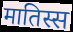
मातिस्स